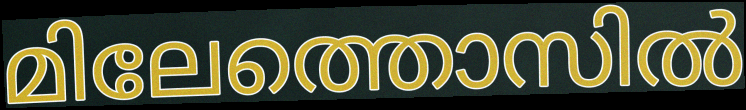
മിലേത്തൊസിൽ